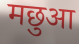
मछुआ